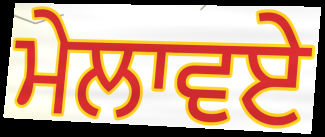
ਮੇਲਾਵਏ